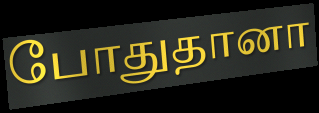
போதுதானா